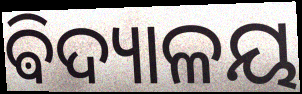
ଵିଦ୍ୟାଳୟ